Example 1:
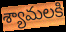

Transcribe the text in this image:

శ్యామలకి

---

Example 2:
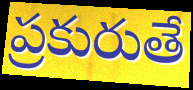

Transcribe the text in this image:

ప్రకురుతే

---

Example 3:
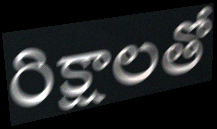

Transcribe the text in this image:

రిక్షాలతో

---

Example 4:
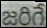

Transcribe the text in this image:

జరిగే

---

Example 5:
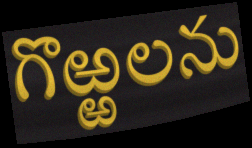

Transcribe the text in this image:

గొఱ్ఱలను